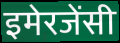
इमेरजेंसी